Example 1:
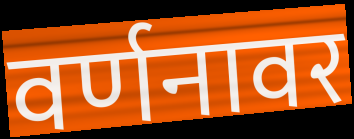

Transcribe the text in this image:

वर्णनावर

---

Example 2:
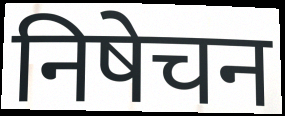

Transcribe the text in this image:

निषेचन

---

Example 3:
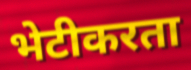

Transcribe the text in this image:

भेटीकरता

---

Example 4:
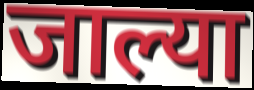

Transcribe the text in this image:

जाल्या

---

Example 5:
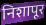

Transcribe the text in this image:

निशापूर